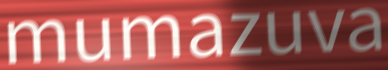
mumazuva